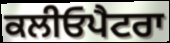
ਕਲੀਓਪੈਟਰਾ